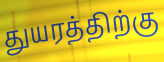
துயரத்திற்கு